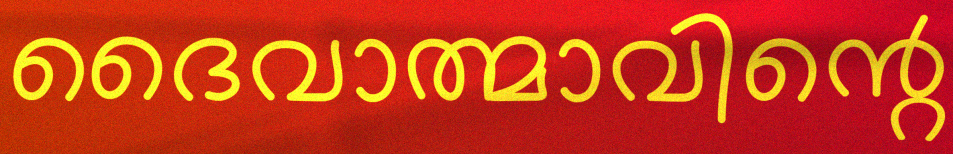
ദൈവാത്മാവിന്റെ